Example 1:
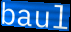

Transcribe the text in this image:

baul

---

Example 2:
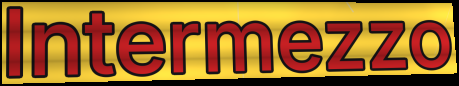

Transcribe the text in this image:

Intermezzo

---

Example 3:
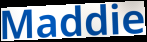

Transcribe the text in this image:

Maddie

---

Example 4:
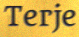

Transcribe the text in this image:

Terje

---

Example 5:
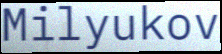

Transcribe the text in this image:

Milyukov